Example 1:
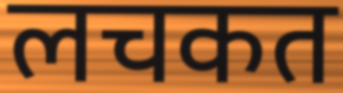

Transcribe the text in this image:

लचकत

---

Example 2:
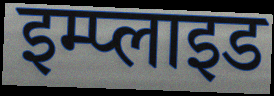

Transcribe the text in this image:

इम्प्लाइड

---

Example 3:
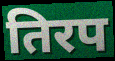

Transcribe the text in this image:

तिरप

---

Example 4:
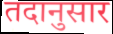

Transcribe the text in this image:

तदानुसार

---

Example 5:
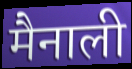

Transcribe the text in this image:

मैनाली